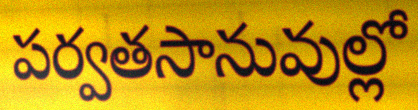
పర్వతసానువుల్లో